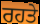
ਰਹਤੇ